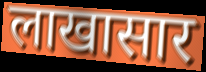
लाखासार